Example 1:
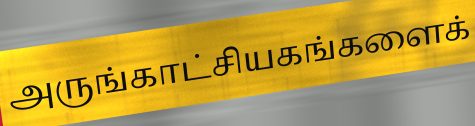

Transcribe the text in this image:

அருங்காட்சியகங்களைக்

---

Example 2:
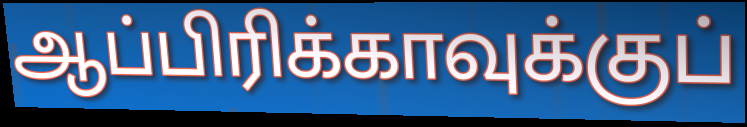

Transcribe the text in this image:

ஆப்பிரிக்காவுக்குப்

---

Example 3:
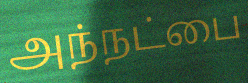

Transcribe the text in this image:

அந்நட்பை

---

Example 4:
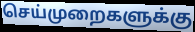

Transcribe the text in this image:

செய்முறைகளுக்கு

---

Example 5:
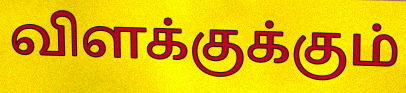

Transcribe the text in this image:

விளக்குக்கும்